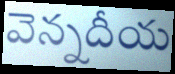
వెన్నదీయ